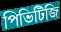
পিভিটিজি